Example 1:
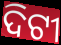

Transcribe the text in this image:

ଦିଟୀ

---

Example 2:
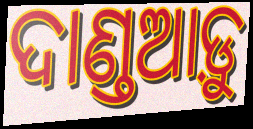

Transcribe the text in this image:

ଦାଣ୍ଡଆଡ଼ୁ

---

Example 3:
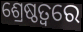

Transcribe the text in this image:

ଶ୍ରେଷ୍ଠତ୍ୱରେ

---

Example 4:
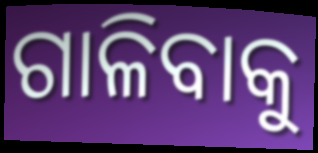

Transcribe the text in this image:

ଗାଳିବାକୁ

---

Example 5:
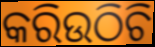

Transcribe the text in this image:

କରିଉଠିଚି